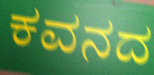
ಕವನದ